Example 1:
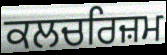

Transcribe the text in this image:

ਕਲਚਰਿਜ਼ਮ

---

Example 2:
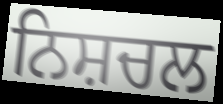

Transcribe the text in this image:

ਨਿਸ਼ਚਲ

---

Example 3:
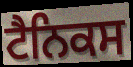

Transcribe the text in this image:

ਟੈਨਿਕਸ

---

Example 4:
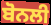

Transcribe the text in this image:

ਬੋਨਲੀ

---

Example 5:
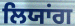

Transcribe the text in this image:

ਲਿਯਾਂਗ